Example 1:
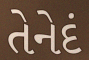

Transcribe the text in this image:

તેનેદં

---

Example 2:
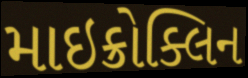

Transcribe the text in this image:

માઇક્રોક્લિન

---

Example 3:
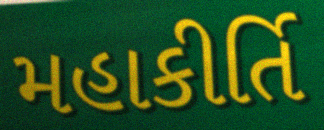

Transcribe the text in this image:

મહાકીર્તિ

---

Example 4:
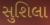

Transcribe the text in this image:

સુશિલા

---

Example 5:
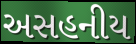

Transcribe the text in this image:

અસહનીય